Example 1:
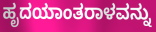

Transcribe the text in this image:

ಹೃದಯಾಂತರಾಳವನ್ನು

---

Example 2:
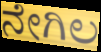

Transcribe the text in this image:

ನೇಗಿಲ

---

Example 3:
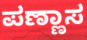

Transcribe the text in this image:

ಪಣ್ಣಾಸ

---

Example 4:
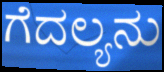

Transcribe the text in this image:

ಗೆದಲ್ಯನು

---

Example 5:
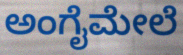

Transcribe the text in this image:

ಅಂಗೈಮೇಲೆ